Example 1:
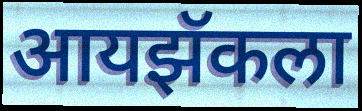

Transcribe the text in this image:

आयझॅकला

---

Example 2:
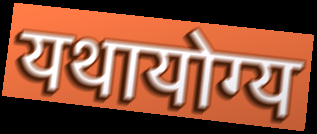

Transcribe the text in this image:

यथायोग्य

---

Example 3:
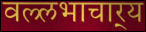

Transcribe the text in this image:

वल्लभाचार्य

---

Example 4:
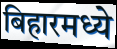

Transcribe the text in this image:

बिहारमध्ये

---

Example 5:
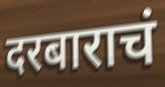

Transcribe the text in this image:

दरबाराचं